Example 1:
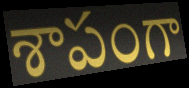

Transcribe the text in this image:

శాపంగా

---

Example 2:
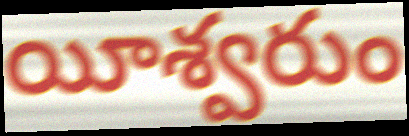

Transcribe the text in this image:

యీశ్వరుం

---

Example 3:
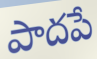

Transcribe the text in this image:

పాదపే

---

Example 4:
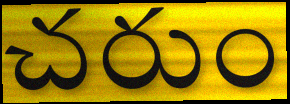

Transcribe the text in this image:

చరుం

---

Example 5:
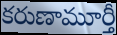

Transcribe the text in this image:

కరుణామూర్తీ